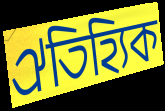
ঐতিহ্যিক